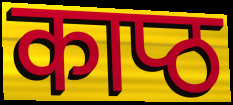
काप्ठ